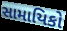
સામાયિકો